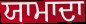
ਯਾਮਾਦਾ